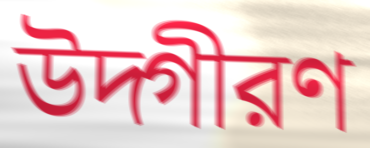
উদ্গীরণ